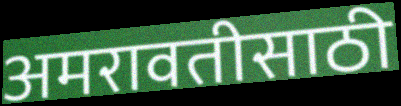
अमरावतीसाठी